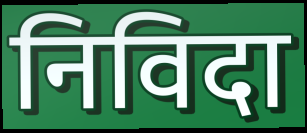
निविदा